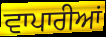
ਵਾਪਾਰੀਆਂ